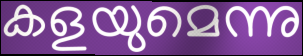
കളയുമെന്നു